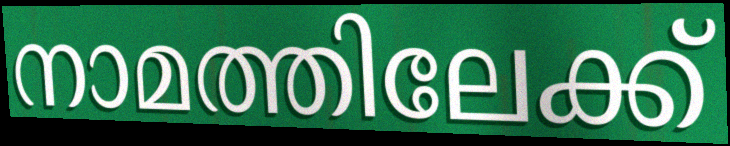
നാമത്തിലേക്ക്